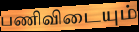
பணிவிடையும்